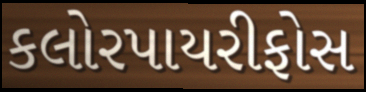
કલોરપાયરીફોસ